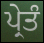
ਪ੍ਰੇਤੰ